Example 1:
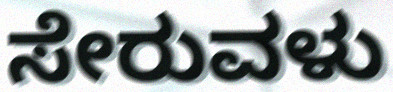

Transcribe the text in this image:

ಸೇರುವಳು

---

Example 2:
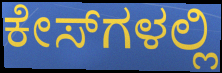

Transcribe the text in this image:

ಕೇಸ್‌ಗಳಲ್ಲಿ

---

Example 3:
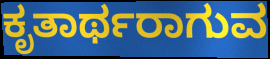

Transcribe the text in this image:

ಕೃತಾರ್ಥರಾಗುವ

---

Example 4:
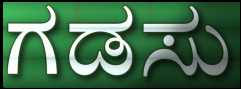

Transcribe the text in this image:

ಗಡಸು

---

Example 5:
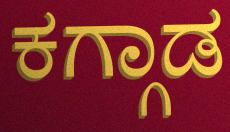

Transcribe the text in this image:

ಕಗ್ಗಾಡ